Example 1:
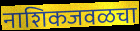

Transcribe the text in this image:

नाशिकजवळचा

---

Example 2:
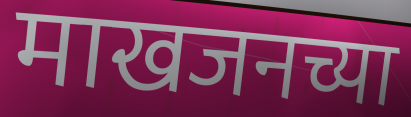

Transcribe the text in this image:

माखजनच्या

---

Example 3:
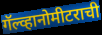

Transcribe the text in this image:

गॅल्व्हानोमीटराची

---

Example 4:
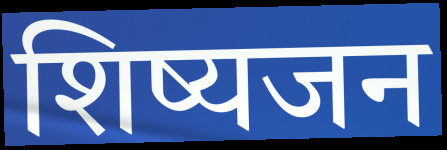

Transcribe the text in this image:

शिष्यजन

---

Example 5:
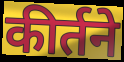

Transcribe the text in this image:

कीर्तने